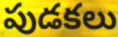
పుడకలు